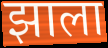
झाला